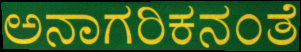
ಅನಾಗರಿಕನಂತೆ